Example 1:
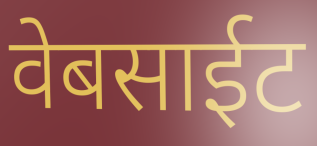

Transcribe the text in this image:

वेबसाईट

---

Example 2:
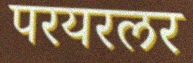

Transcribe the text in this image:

परयरलर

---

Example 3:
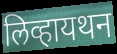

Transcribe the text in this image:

लिव्हायथन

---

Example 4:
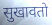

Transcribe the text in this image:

सुखावतो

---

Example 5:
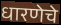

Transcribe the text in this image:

धारणेचे